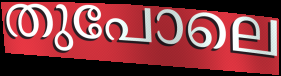
തുപോലെ